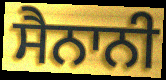
ਸੈਨਾਨੀ